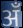
अँ